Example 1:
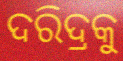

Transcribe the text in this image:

ଦରିଦ୍ରକୁ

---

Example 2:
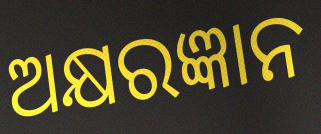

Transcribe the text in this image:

ଅକ୍ଷରଜ୍ଞାନ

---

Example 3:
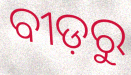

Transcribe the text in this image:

ବୀଡ଼ରୁ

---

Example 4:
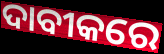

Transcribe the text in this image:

ଦାବୀକରେ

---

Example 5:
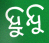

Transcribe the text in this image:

ହୁନ୍ଦୁ